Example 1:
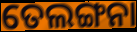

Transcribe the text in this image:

ତେଲଙ୍ଗନା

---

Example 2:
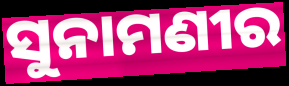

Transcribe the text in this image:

ସୁନାମଣୀର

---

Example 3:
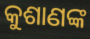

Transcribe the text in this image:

କୁଶାଣଙ୍କ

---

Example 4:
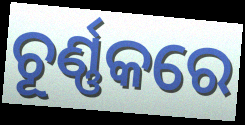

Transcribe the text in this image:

ଚୂର୍ଣ୍ଣକରେ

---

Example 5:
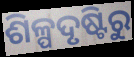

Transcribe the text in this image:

ଶିଳ୍ପଦୃଷ୍ଟିରୁ